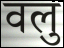
वलु